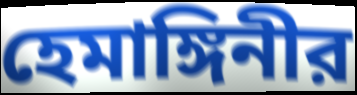
হেমাঙ্গিনীর